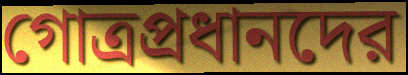
গোত্রপ্রধানদের